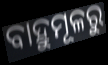
ବାହୁମୂଳରୁ